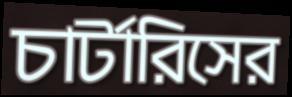
চার্টারিসের